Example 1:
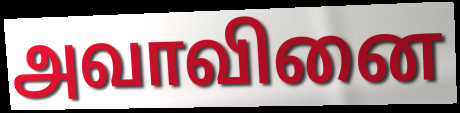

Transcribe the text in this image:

அவாவினை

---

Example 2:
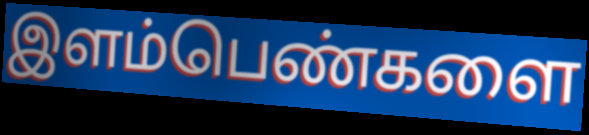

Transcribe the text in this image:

இளம்பெண்களை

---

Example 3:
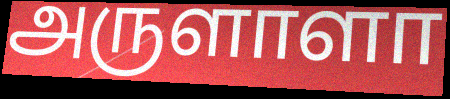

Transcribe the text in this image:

அருளாளா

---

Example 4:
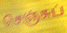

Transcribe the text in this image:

செஞ்சுப்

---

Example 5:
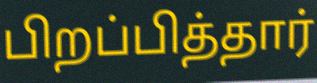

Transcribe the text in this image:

பிறப்பித்தார்